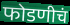
फोडणीचं